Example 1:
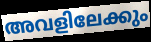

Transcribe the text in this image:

അവളിലേക്കും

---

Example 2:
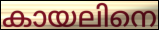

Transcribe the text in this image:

കായലിനെ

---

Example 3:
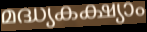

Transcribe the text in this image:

മദ്ധ്യകക്ഷ്യാം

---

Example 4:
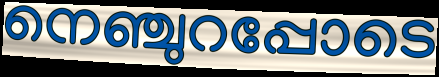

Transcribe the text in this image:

നെഞ്ചുറപ്പോടെ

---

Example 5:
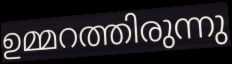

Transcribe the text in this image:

ഉമ്മറത്തിരുന്നു